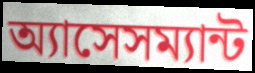
অ্যাসেসম্যান্ট